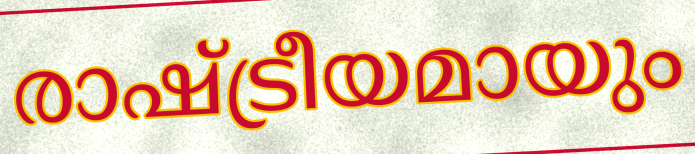
രാഷ്ട്രീയമായും